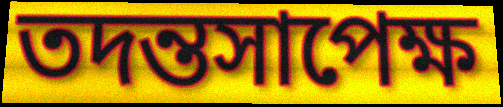
তদন্তসাপেক্ষ